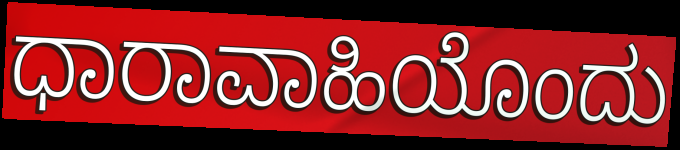
ಧಾರಾವಾಹಿಯೊಂದು